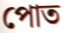
পোত